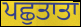
ਪਛੁਤਾਤਾ